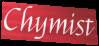
Chymist